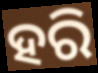
ହରି